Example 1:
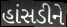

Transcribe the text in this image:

હાંસડીને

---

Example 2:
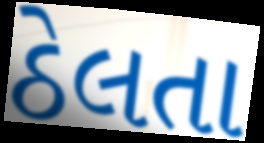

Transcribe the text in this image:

ઠેલતા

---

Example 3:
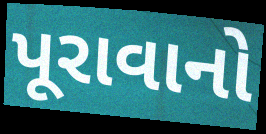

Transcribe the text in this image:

પૂરાવાનો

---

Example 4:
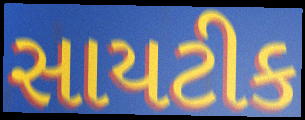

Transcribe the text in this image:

સાયટીક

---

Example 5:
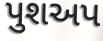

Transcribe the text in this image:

પુશઅપ